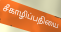
சீகாழிப்பதியை